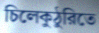
চিলেকুঠুরিতে